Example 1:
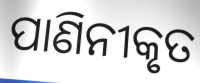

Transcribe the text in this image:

ପାଣିନୀକୃତ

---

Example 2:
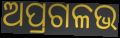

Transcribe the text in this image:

ଅପ୍ରଗଳଭ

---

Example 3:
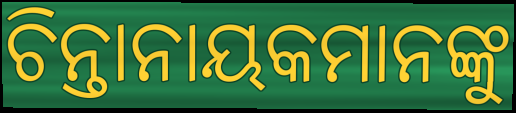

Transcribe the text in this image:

ଚିନ୍ତାନାୟକମାନଙ୍କୁ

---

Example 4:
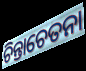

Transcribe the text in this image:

ଚିନ୍ତାଚେତନା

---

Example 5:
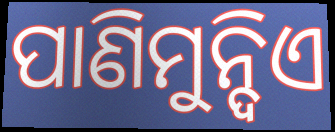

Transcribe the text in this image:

ପାଣିମୁନ୍ଦିଏ